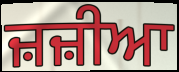
ਜ਼ਜ਼ੀਆ